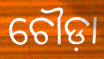
ଚୌଡ଼ା